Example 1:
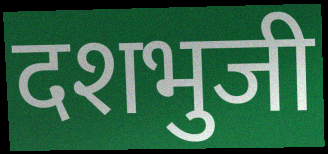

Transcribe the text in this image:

दशभुजी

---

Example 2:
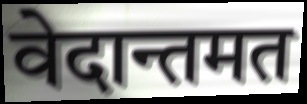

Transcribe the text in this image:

वेदान्तमत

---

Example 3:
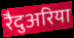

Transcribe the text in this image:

रैदुअरिया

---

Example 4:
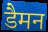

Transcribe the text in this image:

डैमन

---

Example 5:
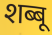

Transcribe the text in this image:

शब्बू